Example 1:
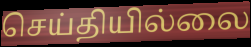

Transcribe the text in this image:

செய்தியில்லை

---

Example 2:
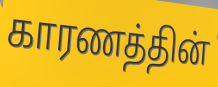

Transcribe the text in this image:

காரணத்தின்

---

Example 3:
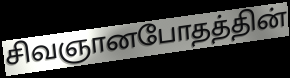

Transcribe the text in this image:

சிவஞானபோதத்தின்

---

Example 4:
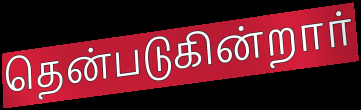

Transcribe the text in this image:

தென்படுகின்றார்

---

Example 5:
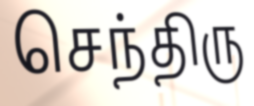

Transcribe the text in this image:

செந்திரு